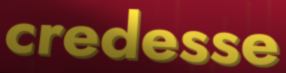
credesse